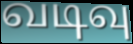
வடிவு